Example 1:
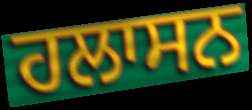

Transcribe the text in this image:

ਹਲਾਸਨ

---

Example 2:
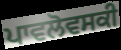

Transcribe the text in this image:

ਪਾਵਲੋਵਸਕੀ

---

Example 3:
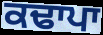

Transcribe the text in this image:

ਕਢਾਪਾ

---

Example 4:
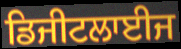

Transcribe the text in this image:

ਡਿਜੀਟਲਾਈਜ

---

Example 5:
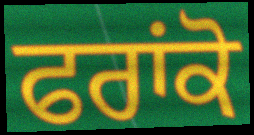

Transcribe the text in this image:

ਫਰਾਂਕੋ